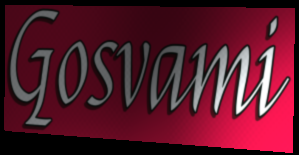
Gosvami